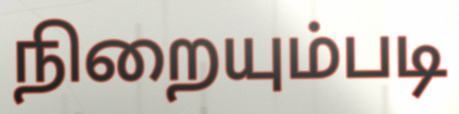
நிறையும்படி